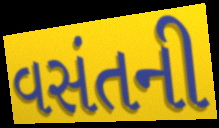
વસંતની